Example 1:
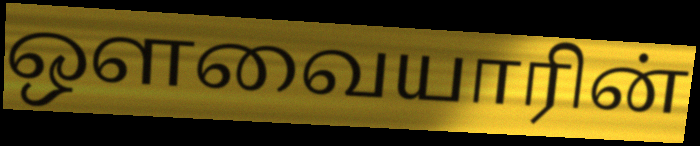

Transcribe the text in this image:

ஔவையாரின்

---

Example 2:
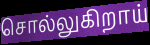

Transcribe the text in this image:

சொல்லுகிறாய்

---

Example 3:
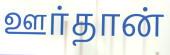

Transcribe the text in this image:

ஊர்தான்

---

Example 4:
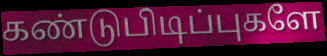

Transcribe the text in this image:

கண்டுபிடிப்புகளே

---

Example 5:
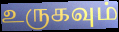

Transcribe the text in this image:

உருகவும்